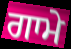
ਗਾਮੇ